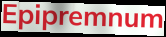
Epipremnum